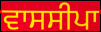
ਵਾਸਸੀਪਾ